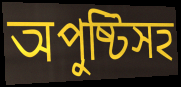
অপুষ্টিসহ